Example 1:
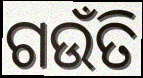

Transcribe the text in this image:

ଗଉଁତି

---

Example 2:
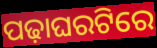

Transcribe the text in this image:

ପଢ଼ାଘରଟିରେ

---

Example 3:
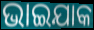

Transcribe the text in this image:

ଭାଇଯାକ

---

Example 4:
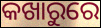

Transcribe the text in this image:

କଖାରୁରେ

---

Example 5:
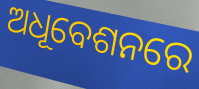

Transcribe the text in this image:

ଅଧୂବେଶନରେ